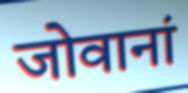
जोवानां